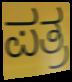
ಪತ್ರ